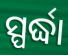
ସ୍ପର୍ଦ୍ଧା